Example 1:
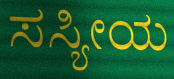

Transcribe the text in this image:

ಸಸ್ಯೀಯ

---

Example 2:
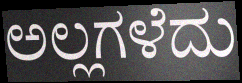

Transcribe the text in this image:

ಅಲ್ಲಗಳೆದು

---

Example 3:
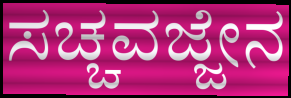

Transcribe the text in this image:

ಸಚ್ಚವಜ್ಜೇನ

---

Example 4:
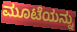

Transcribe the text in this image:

ಮೂಟೆಯನ್ನು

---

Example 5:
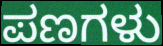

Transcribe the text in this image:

ಪಣಗಳು